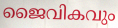
ജൈവികവും